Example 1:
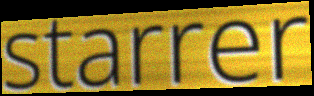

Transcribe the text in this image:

starrer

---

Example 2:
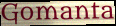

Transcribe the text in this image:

Gomanta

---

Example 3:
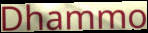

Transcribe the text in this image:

Dhammo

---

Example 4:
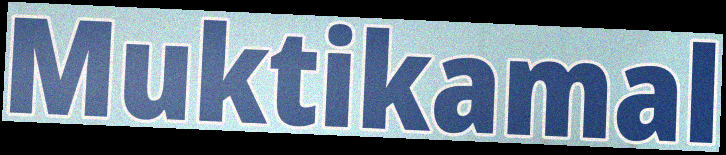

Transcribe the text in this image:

Muktikamal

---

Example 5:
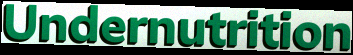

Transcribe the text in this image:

Undernutrition